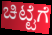
ಚಿಟ್ಟೆಗೆ